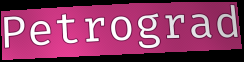
Petrograd